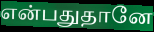
என்பதுதானே